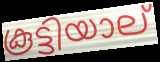
കൂട്ടിയാല്